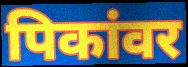
पिकांवर